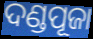
ଦଣ୍ଡପୂଜା